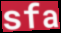
sfa